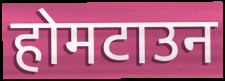
होमटाउन